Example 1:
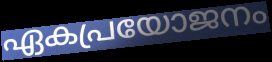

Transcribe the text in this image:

ഏകപ്രയോജനം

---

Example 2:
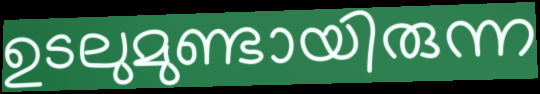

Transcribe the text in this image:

ഉടലുമുണ്ടായിരുന്ന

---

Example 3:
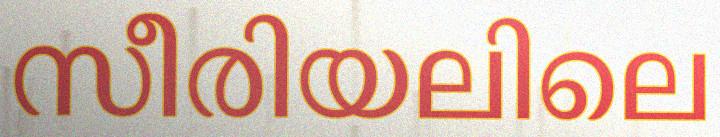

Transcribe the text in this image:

സീരിയലിലെ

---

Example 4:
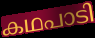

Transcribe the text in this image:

കഥപാടി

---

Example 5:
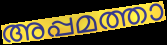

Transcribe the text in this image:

അപ്പമത്താ